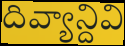
దివ్యాన్దివి